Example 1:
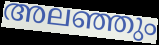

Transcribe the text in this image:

അലഞ്ഞും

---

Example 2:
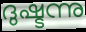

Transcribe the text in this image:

ദുഷ്ടന്നു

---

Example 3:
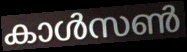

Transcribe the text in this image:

കാൾസൺ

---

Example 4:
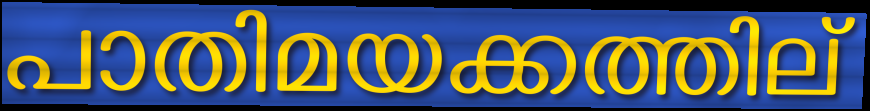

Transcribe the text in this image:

പാതിമയക്കത്തില്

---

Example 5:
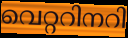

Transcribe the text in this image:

വെറ്ററിനറി